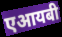
एआयबी